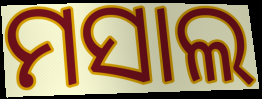
ମସାଲ